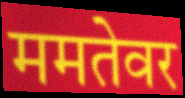
ममतेवर